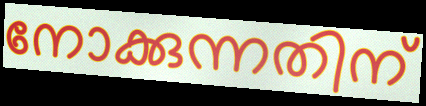
നോക്കുന്നതിന്